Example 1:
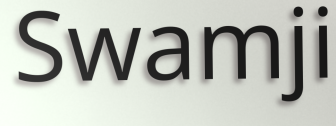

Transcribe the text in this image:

Swamji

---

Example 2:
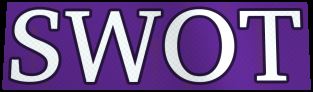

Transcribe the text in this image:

SWOT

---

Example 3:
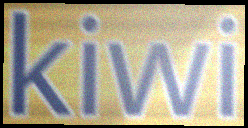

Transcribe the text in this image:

kiwi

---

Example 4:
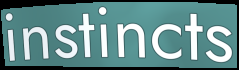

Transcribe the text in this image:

instincts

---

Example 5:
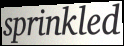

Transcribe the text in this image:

sprinkled